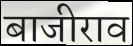
बाजीराव